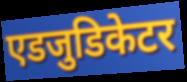
एडजुडिकेटर